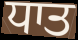
ਧਾਤ